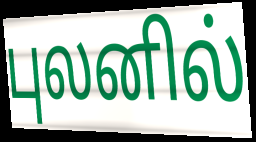
புலனில்